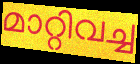
മാറ്റിവച്ച